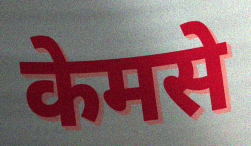
केमसे